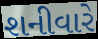
શનીવારે